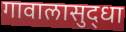
गावालासुद्धा